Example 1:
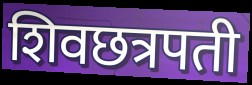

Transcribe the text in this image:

शिवछत्रपती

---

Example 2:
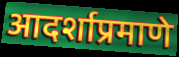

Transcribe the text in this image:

आदर्शाप्रमाणे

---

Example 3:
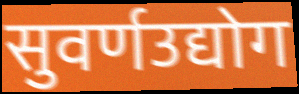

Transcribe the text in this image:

सुवर्णउद्योग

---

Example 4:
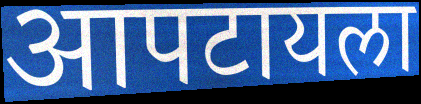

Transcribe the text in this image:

आपटायला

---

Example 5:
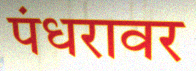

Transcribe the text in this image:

पंधरावर